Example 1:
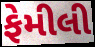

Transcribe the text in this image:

ફેમીલી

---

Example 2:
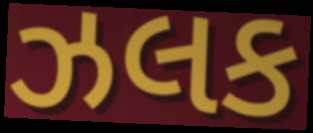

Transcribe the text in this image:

ઝલક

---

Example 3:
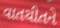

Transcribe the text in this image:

વાતચીતને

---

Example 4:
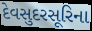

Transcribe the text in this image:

દેવસુદરસૂરિના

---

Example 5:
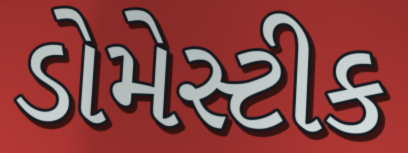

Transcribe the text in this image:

ડોમેસ્ટીક